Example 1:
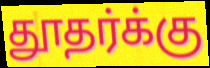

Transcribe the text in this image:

தூதர்க்கு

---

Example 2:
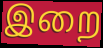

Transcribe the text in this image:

இறை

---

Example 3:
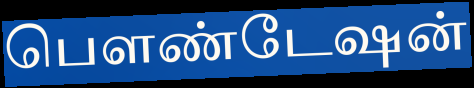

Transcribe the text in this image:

பௌண்டேஷன்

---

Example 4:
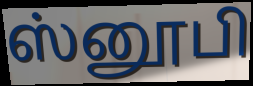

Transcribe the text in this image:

ஸ்னூபி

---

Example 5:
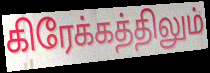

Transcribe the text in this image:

கிரேக்கத்திலும்